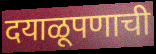
दयाळूपणाची